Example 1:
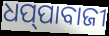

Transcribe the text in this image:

ଧପ୍‌ପାବାଜୀ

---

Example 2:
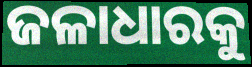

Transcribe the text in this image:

ଜଳାଧାରକୁ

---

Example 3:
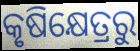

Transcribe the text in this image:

କୃଷିକ୍ଷେତ୍ରରୁ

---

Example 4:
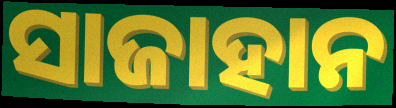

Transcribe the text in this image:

ସାଜାହାନ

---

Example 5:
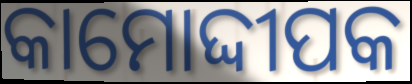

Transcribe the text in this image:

କାମୋଦ୍ଦୀପକ